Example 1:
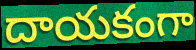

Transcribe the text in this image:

దాయకంగా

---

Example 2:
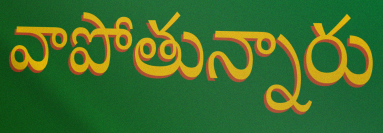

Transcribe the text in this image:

వాపోతున్నారు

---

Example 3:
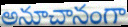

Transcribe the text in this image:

అనూచానంగా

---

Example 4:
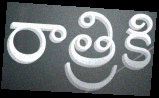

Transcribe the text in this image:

రాత్రికి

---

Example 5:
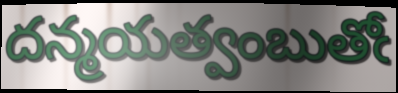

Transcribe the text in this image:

దన్మయత్వంబుతోఁ